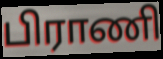
பிராணி